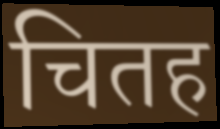
चितह